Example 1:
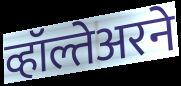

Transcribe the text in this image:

व्हॉल्तेअरने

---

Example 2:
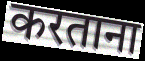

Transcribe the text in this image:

करताना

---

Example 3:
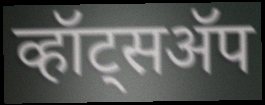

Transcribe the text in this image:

व्हॉट्सॲप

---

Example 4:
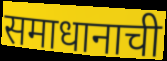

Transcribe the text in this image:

समाधानाची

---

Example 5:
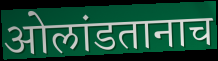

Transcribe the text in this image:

ओलांडतानाच